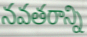
నవతరాన్ని